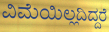
ವಿಮೆಯಿಲ್ಲದಿದ್ದರೆ